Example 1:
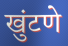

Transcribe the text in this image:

खुंटणे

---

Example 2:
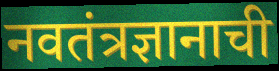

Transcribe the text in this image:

नवतंत्रज्ञानाची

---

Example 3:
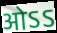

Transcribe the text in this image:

ओऽऽ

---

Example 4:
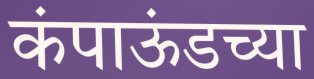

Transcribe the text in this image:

कंपाऊंडच्या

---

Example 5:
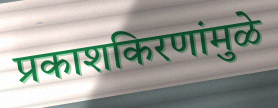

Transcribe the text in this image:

प्रकाशकिरणांमुळे